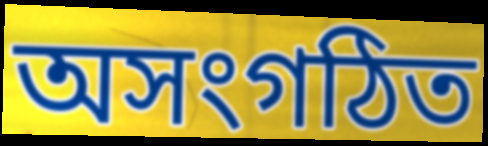
অসংগঠিত